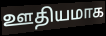
ஊதியமாக